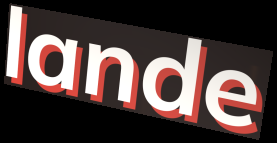
lande